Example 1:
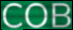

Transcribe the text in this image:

COB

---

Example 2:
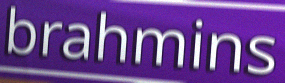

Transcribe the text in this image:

brahmins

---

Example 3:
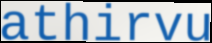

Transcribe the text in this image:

athirvu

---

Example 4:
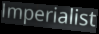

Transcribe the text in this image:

Imperialist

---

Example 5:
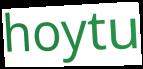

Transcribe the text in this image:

hoytu